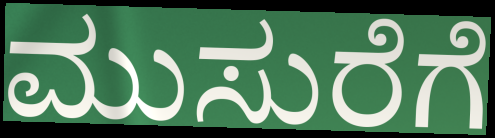
ಮುಸುರೆಗೆ